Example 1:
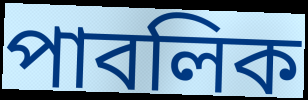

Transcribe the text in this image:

পাবলিক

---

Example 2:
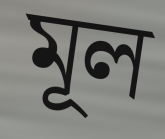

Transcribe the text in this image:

মূল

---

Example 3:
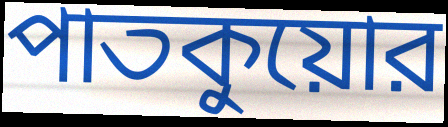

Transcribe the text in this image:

পাতকুয়োর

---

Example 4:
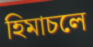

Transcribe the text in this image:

হিমাচলে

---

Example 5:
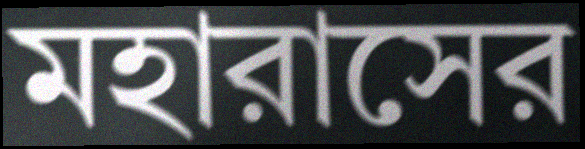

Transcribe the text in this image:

মহারাসের